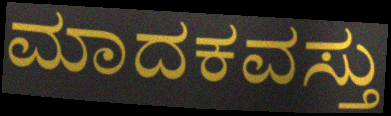
ಮಾದಕವಸ್ತು